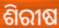
ଶିରୀଷ